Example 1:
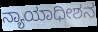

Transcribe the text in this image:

ನ್ಯಾಯಾಧೀಶನ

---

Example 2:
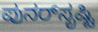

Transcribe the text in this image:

ಪುನರ್‌ಸೃಷ್ಟಿ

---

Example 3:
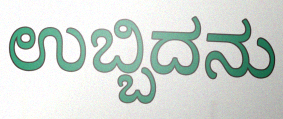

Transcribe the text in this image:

ಉಬ್ಬಿದನು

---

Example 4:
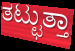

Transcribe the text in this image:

ತಟ್ಟುತ್ತಾ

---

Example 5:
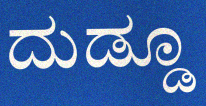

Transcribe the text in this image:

ದುಡ್ಡೂ